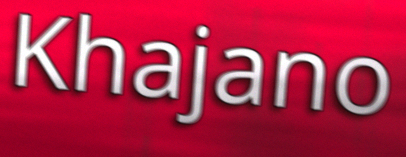
Khajano